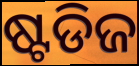
ଷ୍ଟଡିଜ